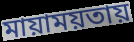
মায়াময়তায়